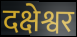
दक्षेश्वर